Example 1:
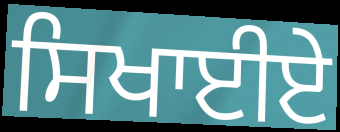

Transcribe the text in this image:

ਸਿਖਾਈਏ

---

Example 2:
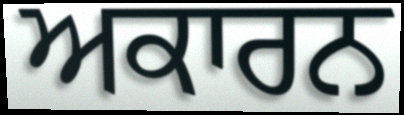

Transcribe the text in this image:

ਅਕਾਰਨ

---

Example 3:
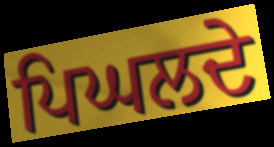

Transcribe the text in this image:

ਪਿਘਲਦੇ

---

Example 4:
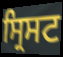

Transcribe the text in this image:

ਸ੍ਰਿਸਟ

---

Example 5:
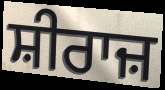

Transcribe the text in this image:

ਸ਼ੀਰਾਜ਼